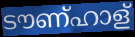
ടൗണ്ഹാള്